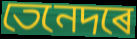
তেনেদৰে